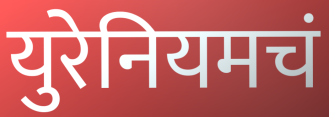
युरेनियमचं